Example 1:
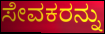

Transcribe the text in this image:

ಸೇವಕರನ್ನು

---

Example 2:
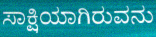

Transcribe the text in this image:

ಸಾಕ್ಷಿಯಾಗಿರುವನು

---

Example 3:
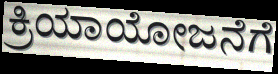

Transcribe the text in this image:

ಕ್ರಿಯಾಯೋಜನೆಗೆ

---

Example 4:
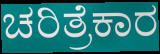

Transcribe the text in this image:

ಚರಿತ್ರೆಕಾರ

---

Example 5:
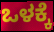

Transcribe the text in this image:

ಒಳಕ್ಕೆ